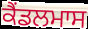
ਕੈਂਡਲਮਾਸ